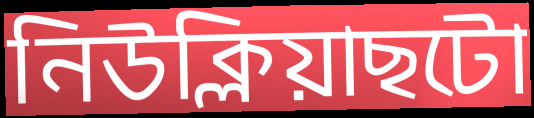
নিউক্লিয়াছটো